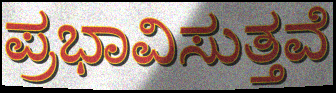
ಪ್ರಭಾವಿಸುತ್ತವೆ